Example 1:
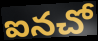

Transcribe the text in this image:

ఐనచో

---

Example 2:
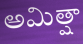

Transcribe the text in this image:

అమిత్షా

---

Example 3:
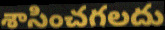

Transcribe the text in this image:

శాసించగలదు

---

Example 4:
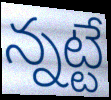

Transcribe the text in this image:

న్నట్టే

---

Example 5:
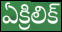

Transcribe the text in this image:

ఏక్రిలిక్